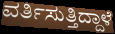
ವರ್ತಿಸುತ್ತಿದ್ದಾಳೆ